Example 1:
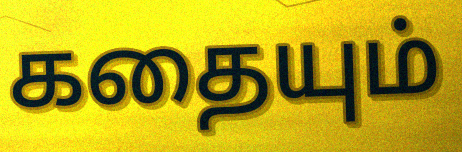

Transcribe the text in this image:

கதையும்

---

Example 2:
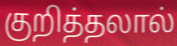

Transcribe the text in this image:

குறித்தலால்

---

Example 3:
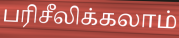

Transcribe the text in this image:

பரிசீலிக்கலாம்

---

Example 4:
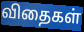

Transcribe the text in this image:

விதைகள்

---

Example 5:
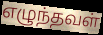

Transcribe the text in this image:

எழுந்தவள்